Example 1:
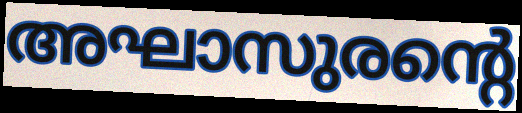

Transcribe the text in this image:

അഘാസുരന്റെ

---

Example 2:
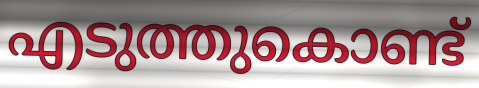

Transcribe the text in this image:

എടുത്തുകൊണ്ട്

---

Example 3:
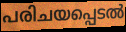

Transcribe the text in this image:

പരിചയപ്പെടൽ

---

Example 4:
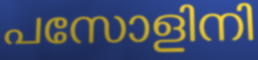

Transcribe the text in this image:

പസോളിനി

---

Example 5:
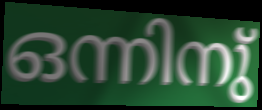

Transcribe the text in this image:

ഒന്നിനു്